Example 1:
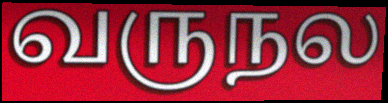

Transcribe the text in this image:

வருநல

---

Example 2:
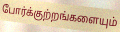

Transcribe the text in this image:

போர்க்குற்றங்களையும்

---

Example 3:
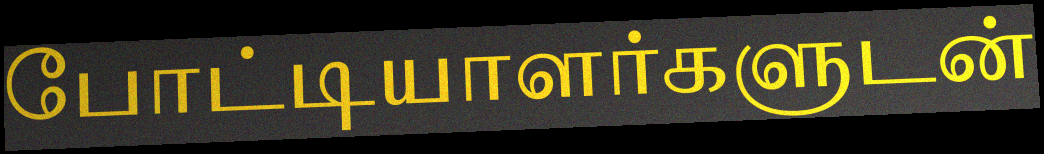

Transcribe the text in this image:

போட்டியாளர்களுடன்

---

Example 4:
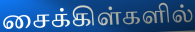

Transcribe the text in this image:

சைக்கிள்களில்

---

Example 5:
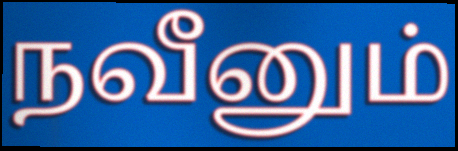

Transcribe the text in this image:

நவீனும்